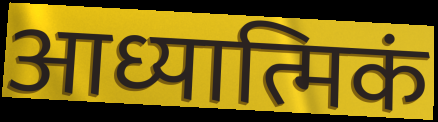
आध्यात्मिकं